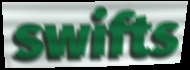
swifts